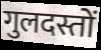
गुलदस्तों